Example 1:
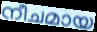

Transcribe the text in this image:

നീചമായ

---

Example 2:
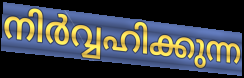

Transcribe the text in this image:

നിർവ്വഹിക്കുന്ന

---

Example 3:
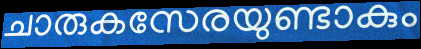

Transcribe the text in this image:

ചാരുകസേരയുണ്ടാകും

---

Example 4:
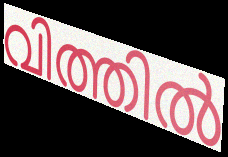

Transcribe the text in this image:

വിത്തിൽ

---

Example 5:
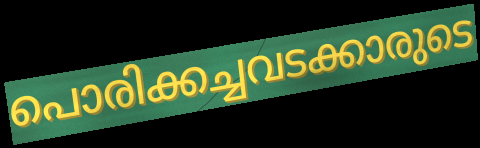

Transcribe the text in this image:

പൊരിക്കച്ചവടക്കാരുടെ